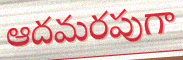
ఆదమరపుగా